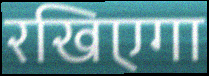
रखिएगा